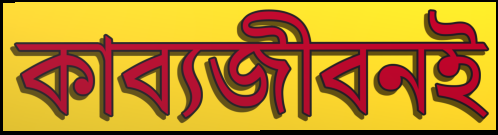
কাব্যজীবনই